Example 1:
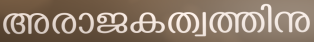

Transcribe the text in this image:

അരാജകത്വത്തിനു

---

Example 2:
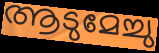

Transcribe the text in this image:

ആടുമേച്ചു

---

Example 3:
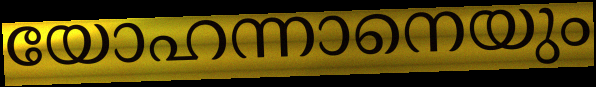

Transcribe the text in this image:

യോഹന്നാനെയും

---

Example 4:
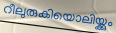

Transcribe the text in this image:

റീലുരുകിയൊലിയ്ക്കും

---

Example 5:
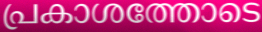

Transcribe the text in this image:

പ്രകാശത്തോടെ